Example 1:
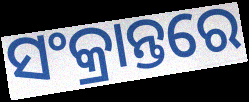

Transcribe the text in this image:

ସଂକ୍ରାନ୍ତରେ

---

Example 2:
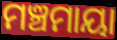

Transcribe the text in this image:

ମଞ୍ଚମାୟା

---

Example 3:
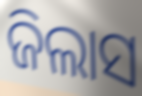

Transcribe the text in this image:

ଜିଲାସ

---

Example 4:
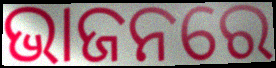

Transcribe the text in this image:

ଭାଜନରେ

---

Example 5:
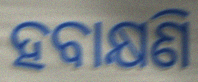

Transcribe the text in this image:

ହବାକ୍ଷଣି